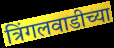
त्रिंगलवाडीच्या